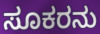
ಸೂಕರನು